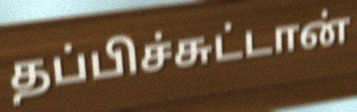
தப்பிச்சுட்டான்